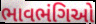
ભાવભંગિઓ